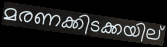
മരണക്കിടക്കയില്